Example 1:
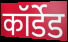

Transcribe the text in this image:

कॉर्डेड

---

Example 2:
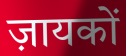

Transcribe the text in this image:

ज़ायकों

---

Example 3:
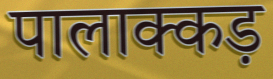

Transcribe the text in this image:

पालाक्कड़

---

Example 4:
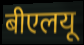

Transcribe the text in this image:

बीएलयू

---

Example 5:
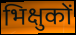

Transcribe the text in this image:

भिक्षुकों